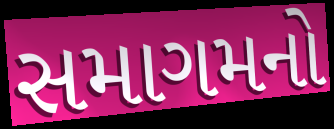
સમાગમનો